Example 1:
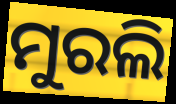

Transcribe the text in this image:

ମୁରଲି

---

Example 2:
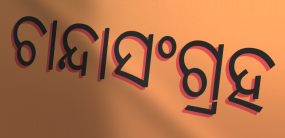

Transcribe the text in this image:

ଚାନ୍ଦାସଂଗ୍ରହ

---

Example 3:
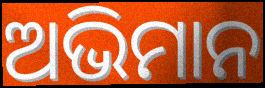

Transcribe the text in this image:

ଅଭିମାନ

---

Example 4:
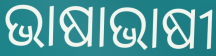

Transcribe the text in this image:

ଭାଷାଭାଷୀ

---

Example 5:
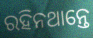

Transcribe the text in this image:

ରହିନଥାନ୍ତେ